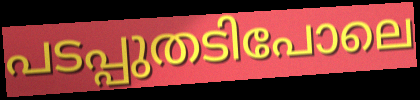
പടപ്പുതടിപോലെ